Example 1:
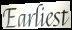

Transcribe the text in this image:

Earliest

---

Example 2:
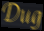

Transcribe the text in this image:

Dug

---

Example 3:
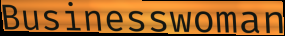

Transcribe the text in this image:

Businesswoman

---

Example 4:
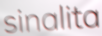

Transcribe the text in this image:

sinalita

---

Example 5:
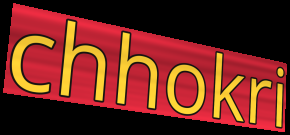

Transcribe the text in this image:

chhokri